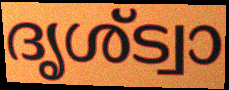
ദൃശ്ട്വാ